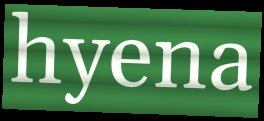
hyena